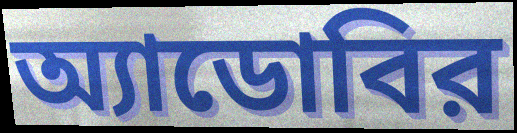
অ্যাডোবির